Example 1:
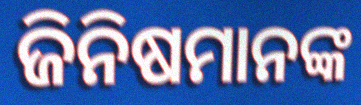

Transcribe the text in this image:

ଜିନିଷମାନଙ୍କ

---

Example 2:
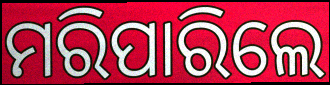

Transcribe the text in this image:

ମରିପାରିଲେ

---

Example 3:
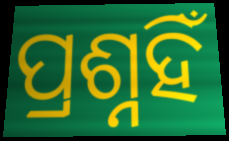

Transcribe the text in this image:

ପ୍ରଶ୍ନହିଁ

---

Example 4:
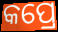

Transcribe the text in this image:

କପ୍ରେ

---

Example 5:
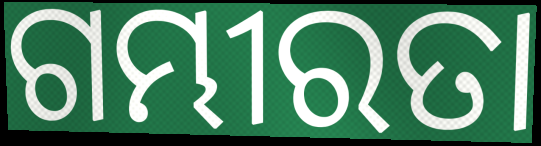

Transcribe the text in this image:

ଗମ୍ଭୀରତା